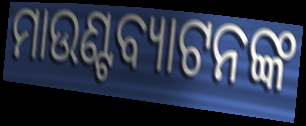
ମାଉଣ୍ଟବ୍ୟାଟନଙ୍କ